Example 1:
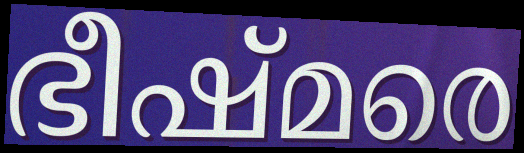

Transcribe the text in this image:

ഭീഷ്മരെ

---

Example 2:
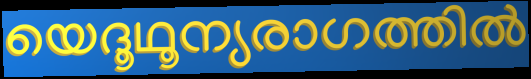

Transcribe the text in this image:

യെദൂഥൂന്യരാഗത്തിൽ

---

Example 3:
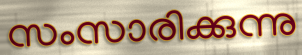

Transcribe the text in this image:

സംസാരിക്കുന്നു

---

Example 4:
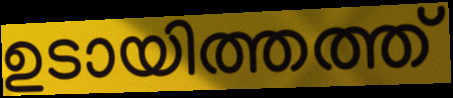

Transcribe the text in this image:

ഉടായിത്തത്ത്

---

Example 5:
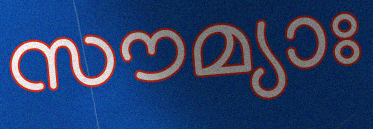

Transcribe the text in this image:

സൗമ്യാഃ